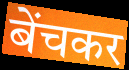
बेंचकर